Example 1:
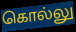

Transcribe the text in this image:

கொல்லு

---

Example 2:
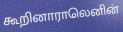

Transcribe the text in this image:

கூறினாராலெனின்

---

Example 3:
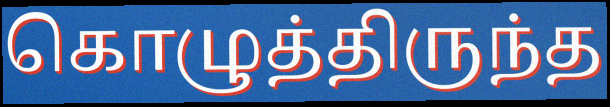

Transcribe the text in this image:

கொழுத்திருந்த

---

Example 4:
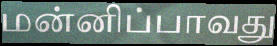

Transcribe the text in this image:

மன்னிப்பாவது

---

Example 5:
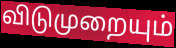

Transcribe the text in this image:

விடுமுறையும்